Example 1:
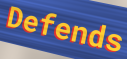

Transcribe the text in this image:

Defends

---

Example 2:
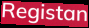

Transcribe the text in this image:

Registan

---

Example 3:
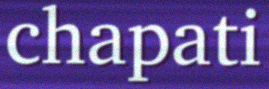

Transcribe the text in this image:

chapati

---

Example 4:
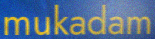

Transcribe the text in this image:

mukadam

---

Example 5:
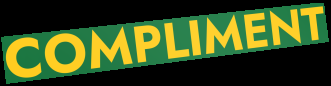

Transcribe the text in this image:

COMPLIMENT